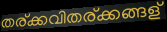
തര്ക്കവിതര്ക്കങ്ങള്